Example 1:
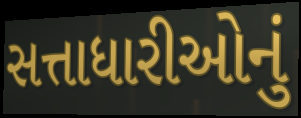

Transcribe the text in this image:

સત્તાધારીઓનું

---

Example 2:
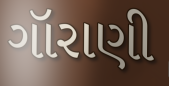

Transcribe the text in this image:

ગૉરાણી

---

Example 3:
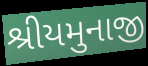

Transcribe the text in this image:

શ્રીયમુનાજી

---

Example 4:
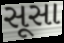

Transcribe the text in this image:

સૂસા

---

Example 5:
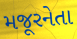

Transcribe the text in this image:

મજૂરનેતા